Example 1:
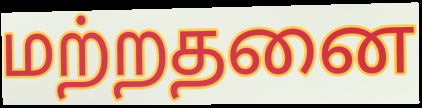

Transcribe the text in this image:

மற்றதனை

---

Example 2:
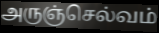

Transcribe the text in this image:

அருஞ்செல்வம்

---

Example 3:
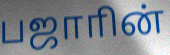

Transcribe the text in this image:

பஜாரின்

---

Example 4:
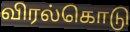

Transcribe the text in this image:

விரல்கொடு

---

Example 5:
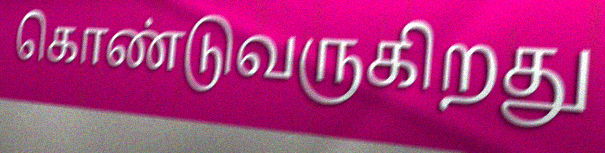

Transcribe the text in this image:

கொண்டுவருகிறது